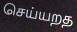
செய்யறத